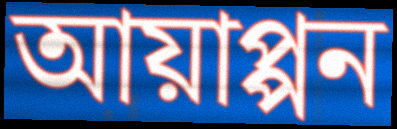
আয়াপ্পন